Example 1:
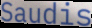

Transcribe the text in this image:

Saudis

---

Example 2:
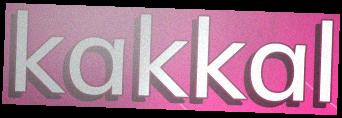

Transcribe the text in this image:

kakkal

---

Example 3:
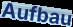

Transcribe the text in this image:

Aufbau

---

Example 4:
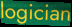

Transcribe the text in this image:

logician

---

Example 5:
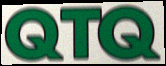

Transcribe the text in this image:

QTQ